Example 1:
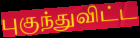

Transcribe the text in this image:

புகுந்துவிட்ட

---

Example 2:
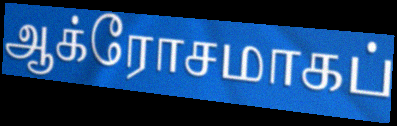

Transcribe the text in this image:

ஆக்ரோசமாகப்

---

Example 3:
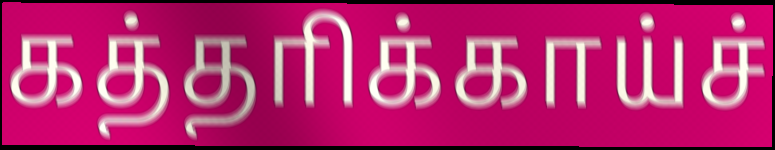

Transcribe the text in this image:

கத்தரிக்காய்ச்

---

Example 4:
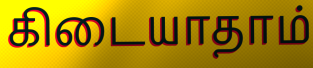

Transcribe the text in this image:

கிடையாதாம்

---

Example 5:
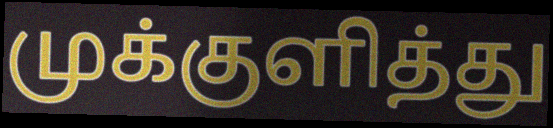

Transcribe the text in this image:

முக்குளித்து